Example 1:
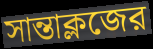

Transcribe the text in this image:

সান্তাক্লজের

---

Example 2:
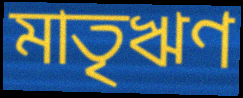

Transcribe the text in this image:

মাতৃঋণ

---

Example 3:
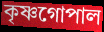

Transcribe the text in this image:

কৃষ্ণগোপাল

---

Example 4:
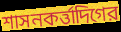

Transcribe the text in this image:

শাসনকর্ত্তাদিগের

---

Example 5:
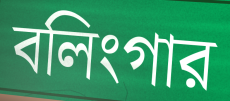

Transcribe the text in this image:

বলিংগার